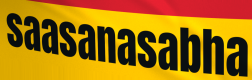
saasanasabha